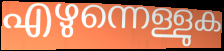
എഴുന്നെള്ളുക